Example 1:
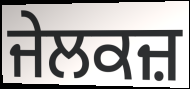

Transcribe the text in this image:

ਜੇਲਕਜ਼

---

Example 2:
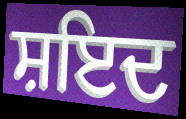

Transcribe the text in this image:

ਸ਼ਇਦ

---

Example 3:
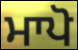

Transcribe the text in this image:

ਮਾਪੋ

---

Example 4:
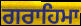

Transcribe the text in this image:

ਗਰਾਹਿਮਾ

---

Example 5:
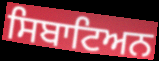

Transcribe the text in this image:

ਸਿਬਾਟਿਅਨ